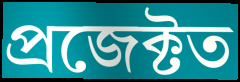
প্ৰজেক্টত